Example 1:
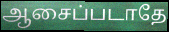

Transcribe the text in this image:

ஆசைப்படாதே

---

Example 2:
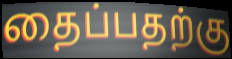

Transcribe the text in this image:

தைப்பதற்கு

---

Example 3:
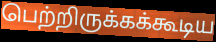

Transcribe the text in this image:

பெற்றிருக்கக்கூடிய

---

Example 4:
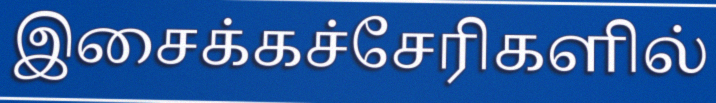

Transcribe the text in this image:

இசைக்கச்சேரிகளில்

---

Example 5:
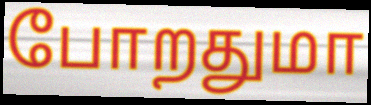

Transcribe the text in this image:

போறதுமா